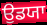
ਉਡਯਾ